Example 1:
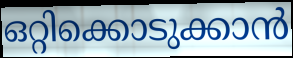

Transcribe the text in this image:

ഒറ്റിക്കൊടുക്കാൻ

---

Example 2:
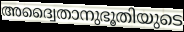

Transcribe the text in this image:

അദ്വൈതാനുഭൂതിയുടെ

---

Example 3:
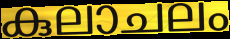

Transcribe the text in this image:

കുലാചലം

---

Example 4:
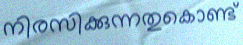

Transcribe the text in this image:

നിരസിക്കുന്നതുകൊണ്ട്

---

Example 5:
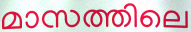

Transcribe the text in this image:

മാസത്തിലെ